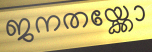
ജനതയ്ക്കോ